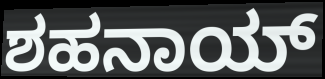
ಶಹನಾಯ್